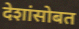
देशांसोबत